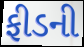
ફીડની